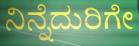
ನಿನ್ನೆದುರಿಗೇ